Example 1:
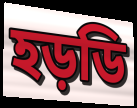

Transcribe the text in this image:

হড়ডি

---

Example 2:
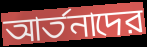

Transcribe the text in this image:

আর্তনাদের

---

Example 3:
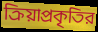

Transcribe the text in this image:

ক্রিয়াপ্রকৃতির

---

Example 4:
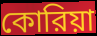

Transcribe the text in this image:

কোরিয়া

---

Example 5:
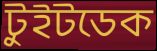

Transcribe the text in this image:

টুইটডেক